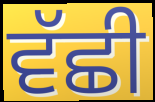
ਵੱਛੀ